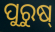
ପୁରୁଷ୍